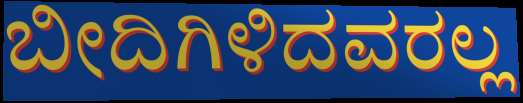
ಬೀದಿಗಿಳಿದವರಲ್ಲ